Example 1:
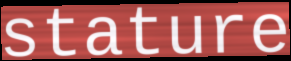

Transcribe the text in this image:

stature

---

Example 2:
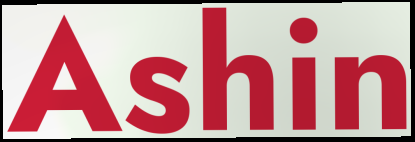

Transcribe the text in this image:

Ashin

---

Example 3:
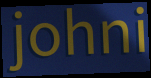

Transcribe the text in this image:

johni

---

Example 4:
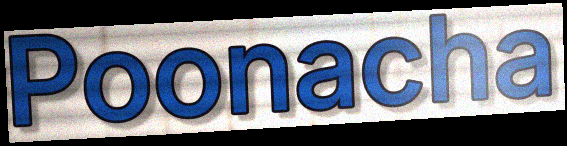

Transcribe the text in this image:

Poonacha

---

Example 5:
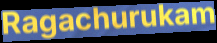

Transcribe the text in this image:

Ragachurukam